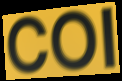
COI